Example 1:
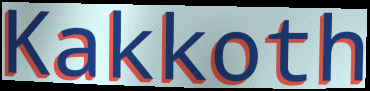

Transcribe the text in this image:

Kakkoth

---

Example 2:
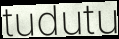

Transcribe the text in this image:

tudutu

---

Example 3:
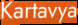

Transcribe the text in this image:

Kartavya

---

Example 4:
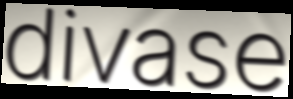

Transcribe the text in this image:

divase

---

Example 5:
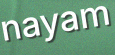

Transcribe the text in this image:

nayam